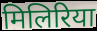
मिलिरिया